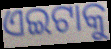
ଏଇଟାକୁ